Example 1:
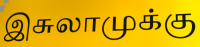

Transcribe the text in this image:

இசுலாமுக்கு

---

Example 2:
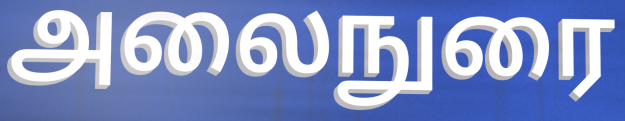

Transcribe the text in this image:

அலைநுரை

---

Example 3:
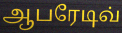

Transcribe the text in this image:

ஆபரேடிவ்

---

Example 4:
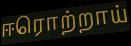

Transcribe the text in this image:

ஈரொற்றாய்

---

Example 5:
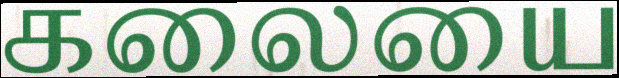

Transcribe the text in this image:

கலையை